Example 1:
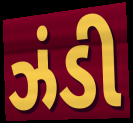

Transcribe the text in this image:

ઝંડી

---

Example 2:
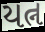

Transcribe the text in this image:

યત્ન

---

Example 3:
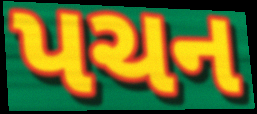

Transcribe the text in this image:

પચન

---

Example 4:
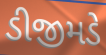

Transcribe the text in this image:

ડીજીમડે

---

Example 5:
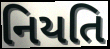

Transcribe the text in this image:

નિયતિ